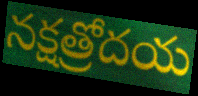
నక్షత్రోదయ